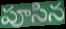
పూసిన